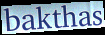
bakthas